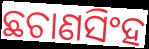
ଛଚାଣସିଂହ